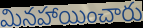
మినహాయించారు